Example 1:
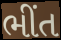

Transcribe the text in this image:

ભીંત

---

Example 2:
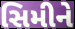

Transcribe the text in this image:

સિમીને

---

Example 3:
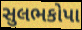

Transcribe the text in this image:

સુલભકોપા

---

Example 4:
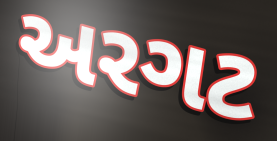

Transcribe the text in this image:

અરગટ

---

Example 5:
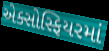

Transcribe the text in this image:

એક્સોસ્ફિયરમાં